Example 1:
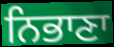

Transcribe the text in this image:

ਨਿਭਾਣਾ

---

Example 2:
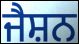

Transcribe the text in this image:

ਜੈਸ਼ਨ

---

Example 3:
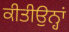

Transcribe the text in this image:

ਕੀਤੀਉਨ੍ਹਾਂ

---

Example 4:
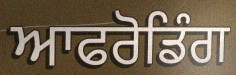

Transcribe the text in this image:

ਆਫਰੋਡਿੰਗ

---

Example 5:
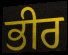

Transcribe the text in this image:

ਭੀਰ